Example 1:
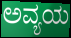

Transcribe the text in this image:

ಅವ್ಯಯ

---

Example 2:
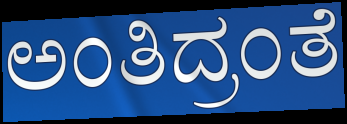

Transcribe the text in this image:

ಅಂತಿದ್ರಂತೆ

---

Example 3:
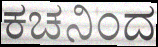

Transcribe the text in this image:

ಕಚನಿಂದ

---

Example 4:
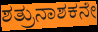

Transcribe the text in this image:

ಶತ್ರುನಾಶಕನೇ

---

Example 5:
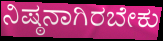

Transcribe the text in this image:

ನಿಷ್ಠನಾಗಿರಬೇಕು